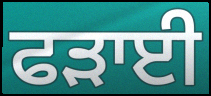
ਫੜਾਈ